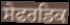
ਸੇਫਰਡਿਕ